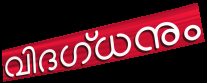
വിദഗ്ധനും